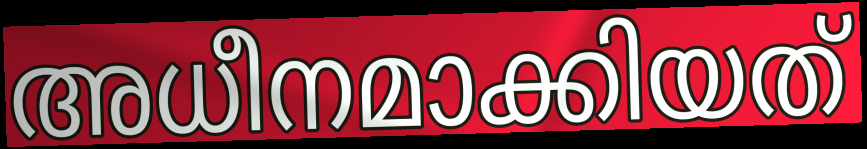
അധീനമാക്കിയത്